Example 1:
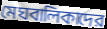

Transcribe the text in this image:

মেঘবালিকাদের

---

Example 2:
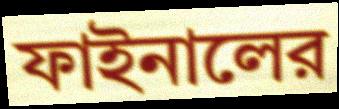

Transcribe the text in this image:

ফাইনালের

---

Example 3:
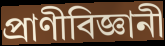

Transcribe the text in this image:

প্রাণীবিজ্ঞানী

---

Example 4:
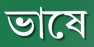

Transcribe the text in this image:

ভাষে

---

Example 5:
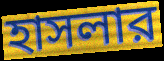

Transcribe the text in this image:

হাসলার